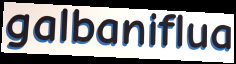
galbaniflua